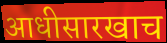
आधीसारखाच